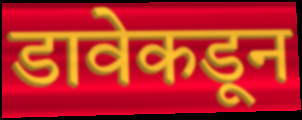
डावेकडून